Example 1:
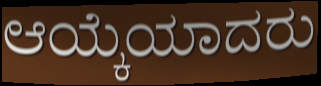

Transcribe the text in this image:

ಆಯ್ಕೆಯಾದರು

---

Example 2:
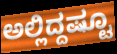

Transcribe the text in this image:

ಅಲ್ಲಿದ್ದಷ್ಟೂ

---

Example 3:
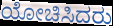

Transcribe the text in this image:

ಯೋಚಿಸಿದರು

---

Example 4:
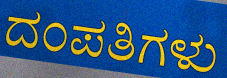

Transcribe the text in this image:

ದಂಪತಿಗಳು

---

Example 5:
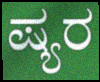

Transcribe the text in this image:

ಷ್ಯರ